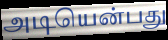
அடியென்பது